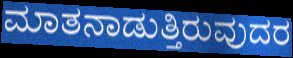
ಮಾತನಾಡುತ್ತಿರುವುದರ